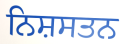
ਨਿਸ਼ਸਤਨ